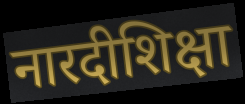
नारदीशिक्षा